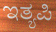
ಇತ್ಯಪಿ